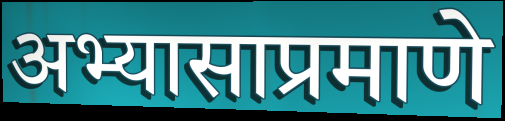
अभ्यासाप्रमाणे